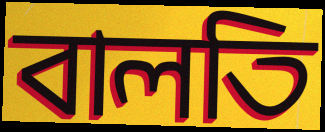
বালতি